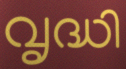
വൃദ്ധി